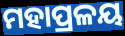
ମହାପ୍ରଳୟ